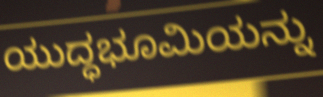
ಯುದ್ಧಭೂಮಿಯನ್ನು